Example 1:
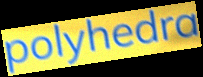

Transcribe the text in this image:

polyhedra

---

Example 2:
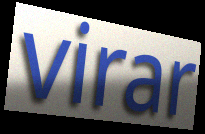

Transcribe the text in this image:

virar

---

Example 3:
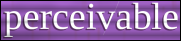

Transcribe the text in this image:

perceivable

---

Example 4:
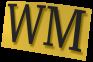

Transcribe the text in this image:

WM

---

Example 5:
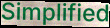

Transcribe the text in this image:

Simplified